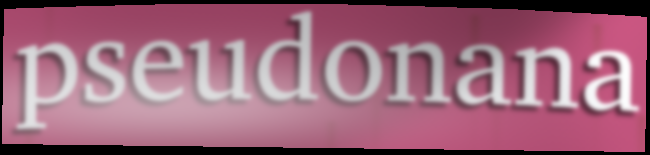
pseudonana